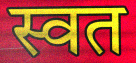
स्वत